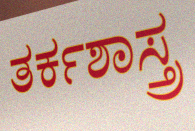
ತರ್ಕಶಾಸ್ತ್ರ